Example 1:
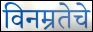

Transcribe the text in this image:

विनम्रतेचे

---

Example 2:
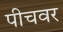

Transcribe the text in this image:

पीचवर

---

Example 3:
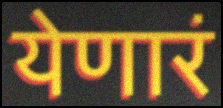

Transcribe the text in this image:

येणारं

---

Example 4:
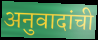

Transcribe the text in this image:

अनुवादांची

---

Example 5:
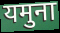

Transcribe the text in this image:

यमुना